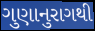
ગુણાનુરાગથી